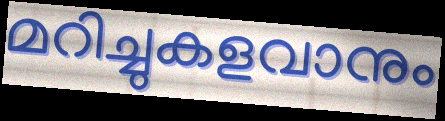
മറിച്ചുകളവാനും